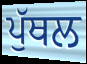
ਪੁੱਥਲ